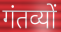
गंतव्यों